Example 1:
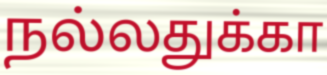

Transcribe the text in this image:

நல்லதுக்கா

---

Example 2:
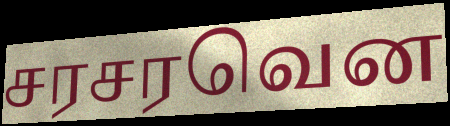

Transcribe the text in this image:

சரசரவென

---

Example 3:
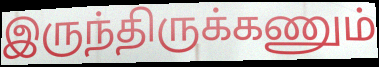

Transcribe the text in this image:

இருந்திருக்கணும்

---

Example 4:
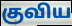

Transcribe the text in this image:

குவிய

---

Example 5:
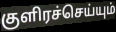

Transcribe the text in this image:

குளிரச்செய்யும்